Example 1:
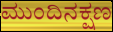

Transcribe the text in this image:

ಮುಂದಿನಕ್ಷಣ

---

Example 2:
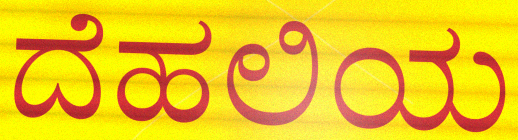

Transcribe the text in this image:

ದೆಹಲಿಯ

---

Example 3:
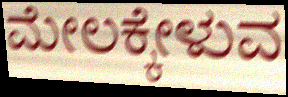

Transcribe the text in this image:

ಮೇಲಕ್ಕೇಳುವ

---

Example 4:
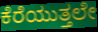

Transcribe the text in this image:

ಕೆರೆಯುತ್ತಲೇ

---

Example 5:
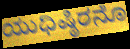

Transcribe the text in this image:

ಯುಧಿಷ್ಠಿರನೊ